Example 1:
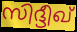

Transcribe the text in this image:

സിദ്ദീഖ്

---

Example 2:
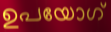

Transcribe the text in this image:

ഉപയോഗ്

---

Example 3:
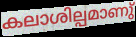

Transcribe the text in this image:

കലാശില്പമാണു്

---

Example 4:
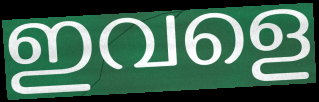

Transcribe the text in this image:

ഇവളെ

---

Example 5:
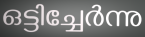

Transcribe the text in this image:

ഒട്ടിച്ചേർന്നു